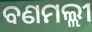
ବଣମଲ୍ଲୀ